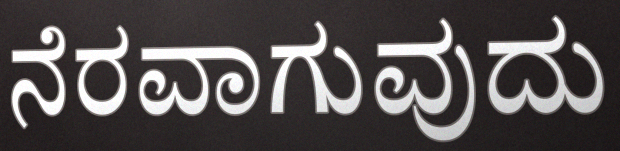
ನೆರವಾಗುವುದು